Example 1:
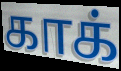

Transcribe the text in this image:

காக்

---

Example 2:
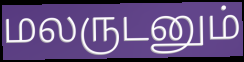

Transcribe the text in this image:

மலருடனும்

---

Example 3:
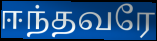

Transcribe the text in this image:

ஈந்தவரே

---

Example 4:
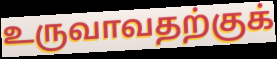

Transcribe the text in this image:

உருவாவதற்குக்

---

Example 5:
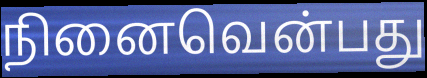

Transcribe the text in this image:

நினைவென்பது